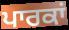
ਪਾਰਕਾਂ